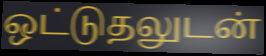
ஒட்டுதலுடன்